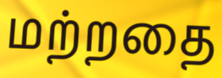
மற்றதை